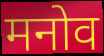
मनोव